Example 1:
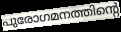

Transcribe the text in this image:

പുരോഗമനത്തിന്റെ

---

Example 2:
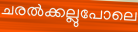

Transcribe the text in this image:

ചരൽക്കല്ലുപോലെ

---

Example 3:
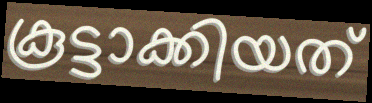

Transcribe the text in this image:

കൂട്ടാക്കിയത്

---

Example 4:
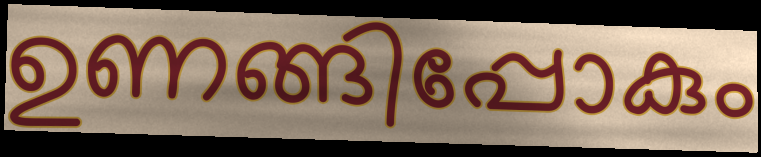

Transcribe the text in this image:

ഉണങ്ങിപ്പോകും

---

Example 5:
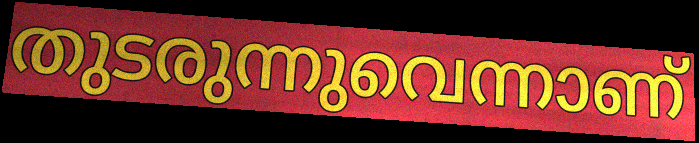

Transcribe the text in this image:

തുടരുന്നുവെന്നാണ്